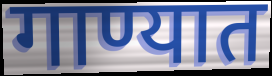
गाण्यात